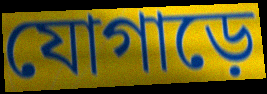
যোগাড়ে